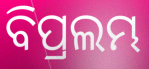
ବିପ୍ରଲମ୍ଭ